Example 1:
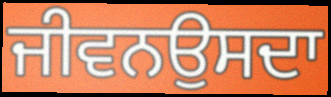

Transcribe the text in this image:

ਜੀਵਨਉਸਦਾ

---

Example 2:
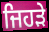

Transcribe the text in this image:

ਜਿਹਡ਼ੇ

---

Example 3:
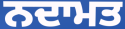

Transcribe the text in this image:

ਨਦਾਮਤ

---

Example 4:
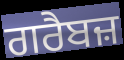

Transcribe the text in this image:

ਗਰੈਬਜ਼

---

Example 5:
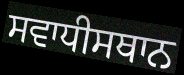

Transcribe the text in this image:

ਸਵਾਧੀਸਥਾਨ